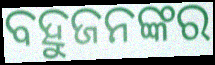
ବହୁଜନଙ୍କର